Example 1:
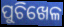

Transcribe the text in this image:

ପୁଚିଖେଳ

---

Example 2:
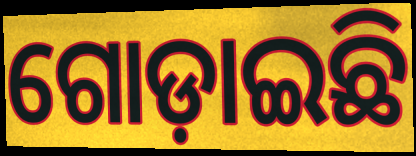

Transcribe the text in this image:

ଗୋଡ଼ାଇଛି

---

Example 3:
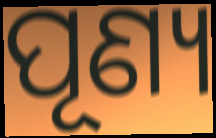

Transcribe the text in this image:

ପୂଣ୍ୟ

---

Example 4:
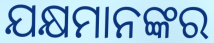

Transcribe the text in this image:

ଯକ୍ଷମାନଙ୍କର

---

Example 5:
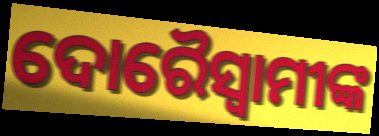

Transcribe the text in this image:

ଦୋରୈସ୍ବାମୀଙ୍କ